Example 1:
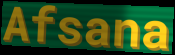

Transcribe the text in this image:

Afsana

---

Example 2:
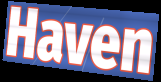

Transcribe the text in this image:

Haven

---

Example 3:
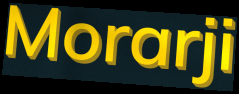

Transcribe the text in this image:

Morarji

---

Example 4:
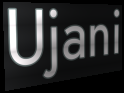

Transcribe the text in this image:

Ujani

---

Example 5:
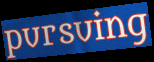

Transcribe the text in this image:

pursuing